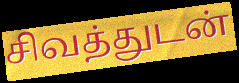
சிவத்துடன்